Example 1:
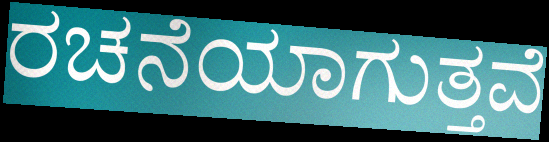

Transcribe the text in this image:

ರಚನೆಯಾಗುತ್ತವೆ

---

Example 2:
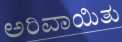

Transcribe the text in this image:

ಅರಿವಾಯಿತು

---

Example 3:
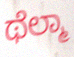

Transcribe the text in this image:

ಥೆಲ್ಮಾ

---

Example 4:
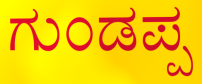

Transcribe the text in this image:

ಗುಂಡಪ್ಪ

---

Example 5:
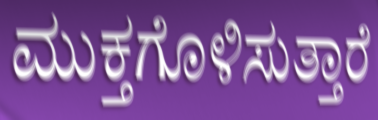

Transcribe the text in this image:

ಮುಕ್ತಗೊಳಿಸುತ್ತಾರೆ